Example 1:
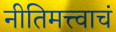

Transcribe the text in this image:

नीतिमत्त्वाचं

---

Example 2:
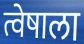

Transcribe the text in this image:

त्वेषाला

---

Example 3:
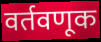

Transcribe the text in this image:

वर्तवणूक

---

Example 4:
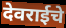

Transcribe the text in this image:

देवराईचे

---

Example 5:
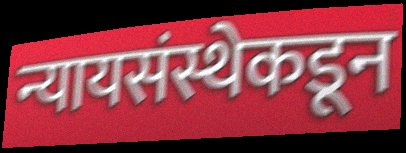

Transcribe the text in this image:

न्यायसंस्थेकडून